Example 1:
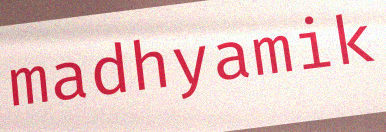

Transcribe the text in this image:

madhyamik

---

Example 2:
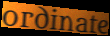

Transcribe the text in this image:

ordinate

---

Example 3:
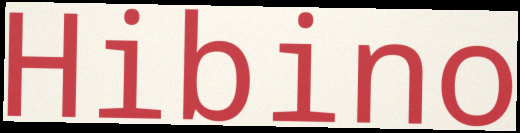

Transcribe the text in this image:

Hibino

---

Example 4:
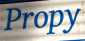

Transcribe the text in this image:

Propy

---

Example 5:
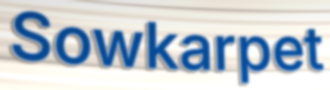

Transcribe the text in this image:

Sowkarpet